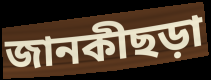
জানকীছড়া